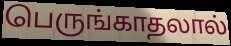
பெருங்காதலால்